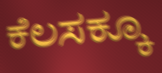
ಕೆಲಸಕ್ಕೂ